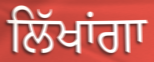
ਲਿੱਖਾਂਗਾ